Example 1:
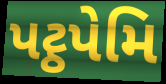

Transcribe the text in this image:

પટ્ઠપેમિ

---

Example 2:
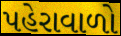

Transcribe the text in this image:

પહેરાવાળો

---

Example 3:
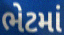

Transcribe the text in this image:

ભેટમાં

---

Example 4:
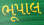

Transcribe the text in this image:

ભૂપાલ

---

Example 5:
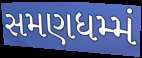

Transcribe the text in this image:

સમણધમ્મં